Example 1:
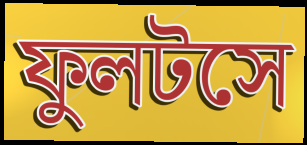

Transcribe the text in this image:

ফুলটসে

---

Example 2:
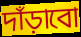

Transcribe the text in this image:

দাঁড়াবো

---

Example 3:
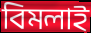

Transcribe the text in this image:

বিমলাই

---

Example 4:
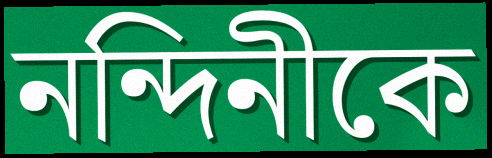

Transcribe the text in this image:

নন্দিনীকে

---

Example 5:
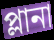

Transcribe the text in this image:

প্লানা